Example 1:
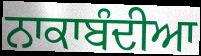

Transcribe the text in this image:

ਨਾਕਾਬੰਦੀਆ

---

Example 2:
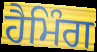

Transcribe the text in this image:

ਹੈਮਿੰਗ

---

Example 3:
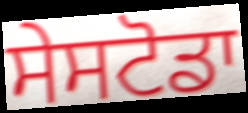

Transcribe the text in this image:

ਸੇਸਟੋਡਾ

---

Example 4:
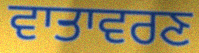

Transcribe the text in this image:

ਵਾਤਾਵਰਣ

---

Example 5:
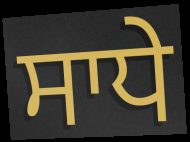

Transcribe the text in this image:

ਸਾਧੇ